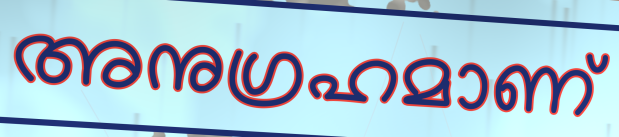
അനുഗ്രഹമാണ്